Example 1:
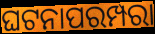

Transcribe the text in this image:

ଘଟନାପରମ୍ପରା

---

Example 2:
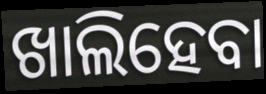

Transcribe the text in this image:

ଖାଲିହେବା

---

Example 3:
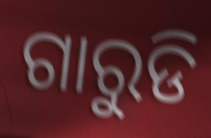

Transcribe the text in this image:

ଗାରୁଡି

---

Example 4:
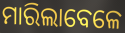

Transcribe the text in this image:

ମାରିଲାବେଳେ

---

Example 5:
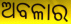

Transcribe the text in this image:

ଅବଳାର